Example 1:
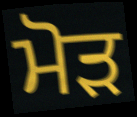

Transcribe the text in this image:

ਮੋਡ਼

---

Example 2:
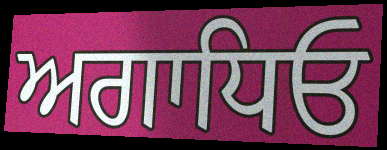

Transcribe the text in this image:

ਅਗਾਧਿਓ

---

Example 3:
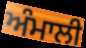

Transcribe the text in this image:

ਅੰਮਾਲੀ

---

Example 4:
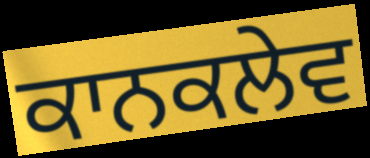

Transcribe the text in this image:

ਕਾਨਕਲੇਵ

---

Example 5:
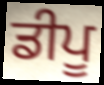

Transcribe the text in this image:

ਡੀਪੂ